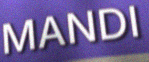
MANDI